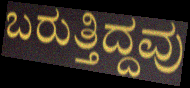
ಬರುತ್ತಿದ್ದವು